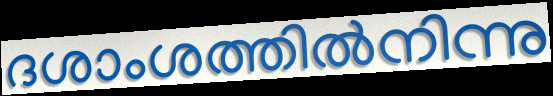
ദശാംശത്തിൽനിന്നു